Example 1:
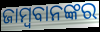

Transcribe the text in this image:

ଜାମ୍ବବାନଙ୍କର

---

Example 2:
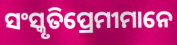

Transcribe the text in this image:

ସଂସ୍କୃତିପ୍ରେମୀମାନେ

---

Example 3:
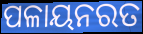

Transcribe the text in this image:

ପଳାୟନରତ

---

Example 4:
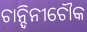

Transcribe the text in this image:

ଚାନ୍ଦିନୀଚୌକ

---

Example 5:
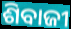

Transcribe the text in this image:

ଶିବାଜୀ